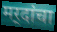
मर्दांचा